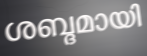
ശബ്ദമായി